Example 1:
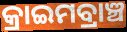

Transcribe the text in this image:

କ୍ରାଇମବ୍ରାଞ୍ଚ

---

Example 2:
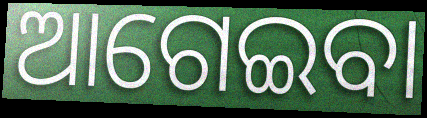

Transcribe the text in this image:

ଆଗେଇବା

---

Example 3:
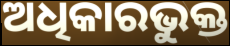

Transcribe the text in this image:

ଅଧିକାରଭୁକ୍ତ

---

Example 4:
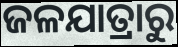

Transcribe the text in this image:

ଜଳଯାତ୍ରାରୁ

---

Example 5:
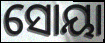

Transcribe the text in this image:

ସୋୟା